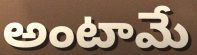
అంటామే